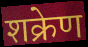
शक्रेण